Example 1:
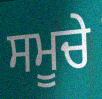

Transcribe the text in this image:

ਸਮੂਚੇ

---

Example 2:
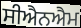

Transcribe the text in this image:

ਸੀਐਨਐਮ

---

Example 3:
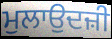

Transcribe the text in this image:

ਮੁਲਾਉਦਜ਼ੀ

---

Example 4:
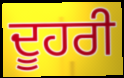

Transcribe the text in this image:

ਦੂਹਰੀ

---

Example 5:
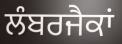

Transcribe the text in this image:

ਲੰਬਰਜੈਕਾਂ